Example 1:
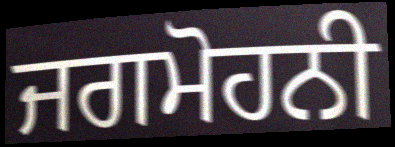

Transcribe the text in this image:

ਜਗਮੋਹਨੀ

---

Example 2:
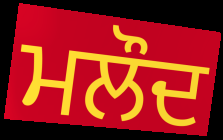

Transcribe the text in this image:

ਮਲੌਦ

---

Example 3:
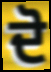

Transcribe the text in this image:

ਦੋ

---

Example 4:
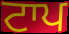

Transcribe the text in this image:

ਟਾਪ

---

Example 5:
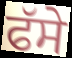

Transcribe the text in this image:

ਫੱਸੇ